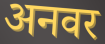
अनवर